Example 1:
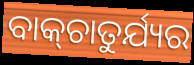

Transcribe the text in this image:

ବାକ୍‍ଚାତୁର୍ଯ୍ୟର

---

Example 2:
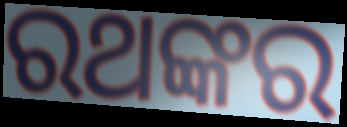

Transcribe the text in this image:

ରଥଙ୍କର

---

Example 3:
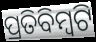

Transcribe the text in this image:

ପ୍ରତିବିମ୍ବଟି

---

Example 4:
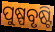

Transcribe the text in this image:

ପୁଷ୍ପବୃଷ୍ଟି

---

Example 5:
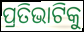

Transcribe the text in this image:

ପ୍ରତିଭାଟିକୁ